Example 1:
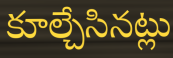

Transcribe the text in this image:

కూల్చేసినట్లు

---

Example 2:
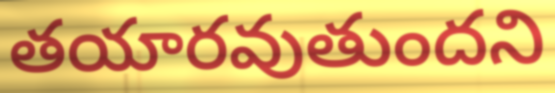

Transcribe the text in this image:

తయారవుతుందని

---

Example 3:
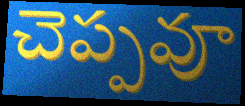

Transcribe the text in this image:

చెప్పవూ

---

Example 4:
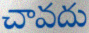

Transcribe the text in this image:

చావదు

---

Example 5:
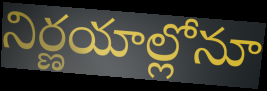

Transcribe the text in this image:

నిర్ణయాల్లోనూ